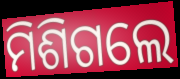
ମିଶିଗଲେ